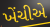
ખેંચીએ